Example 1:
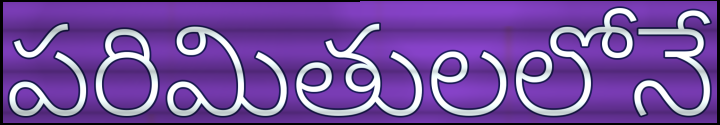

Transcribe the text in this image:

పరిమితులలోనే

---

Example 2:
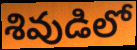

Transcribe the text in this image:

శివుడిలో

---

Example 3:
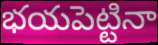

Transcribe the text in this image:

భయపెట్టినా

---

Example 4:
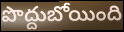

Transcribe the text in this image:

పొద్దుబోయింది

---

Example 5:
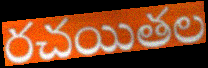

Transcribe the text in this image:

రచయితల